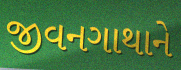
જીવનગાથાને